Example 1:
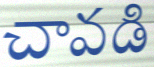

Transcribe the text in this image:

చావడి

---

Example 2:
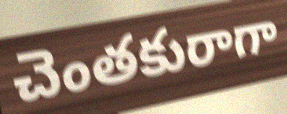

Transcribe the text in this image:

చెంతకురాగా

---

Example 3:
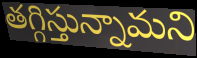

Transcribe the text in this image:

తగ్గిస్తున్నామని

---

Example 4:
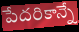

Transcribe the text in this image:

పేదరికాన్నే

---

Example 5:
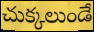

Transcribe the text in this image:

చుక్కలుండే